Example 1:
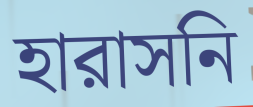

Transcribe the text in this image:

হারাসনি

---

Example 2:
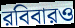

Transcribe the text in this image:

রবিবারও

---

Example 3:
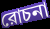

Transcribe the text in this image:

রোচনা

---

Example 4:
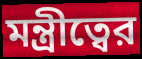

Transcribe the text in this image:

মন্ত্রীত্বের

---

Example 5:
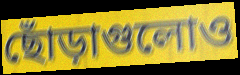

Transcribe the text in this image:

ছোঁড়াগুলোও